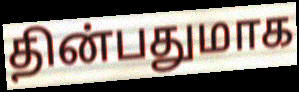
தின்பதுமாக